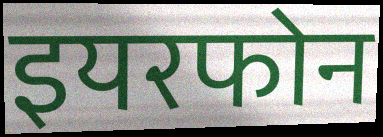
इयरफोन